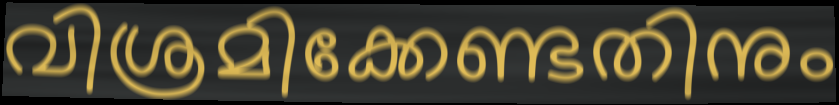
വിശ്രമിക്കേണ്ടതിനും